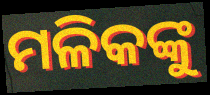
ମଳିକଙ୍କୁ